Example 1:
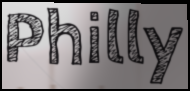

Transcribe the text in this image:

Philly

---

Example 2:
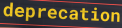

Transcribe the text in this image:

deprecation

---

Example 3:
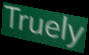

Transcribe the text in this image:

Truely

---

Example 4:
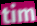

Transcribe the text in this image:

tim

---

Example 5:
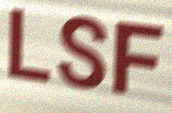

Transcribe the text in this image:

LSF